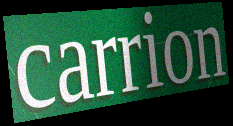
carrion